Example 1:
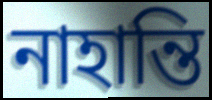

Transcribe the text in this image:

নাহান্তি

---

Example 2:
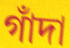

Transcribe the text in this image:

গাঁদা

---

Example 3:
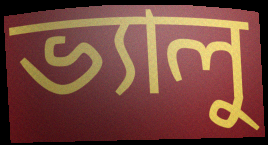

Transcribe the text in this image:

ভ্যালু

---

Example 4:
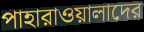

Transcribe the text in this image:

পাহারাওয়ালাদের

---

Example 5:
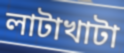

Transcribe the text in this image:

লাটাখাটা